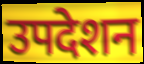
उपदेशन